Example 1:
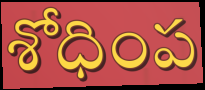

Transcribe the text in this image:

శోధింప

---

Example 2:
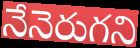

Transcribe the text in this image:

నేనెరుగని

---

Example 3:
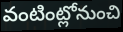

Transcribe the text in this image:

వంటింట్లోనుంచి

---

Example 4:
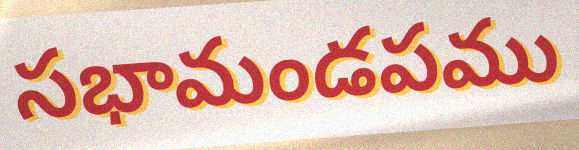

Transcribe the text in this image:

సభామండపము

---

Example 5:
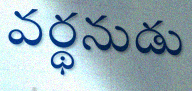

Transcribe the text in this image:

వర్థనుడు